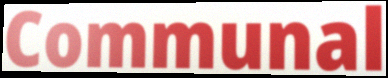
Communal